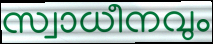
സ്വാധീനവും